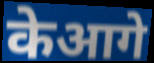
केआगे